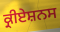
ਕ੍ਰੀਏਸ਼ਨਸ